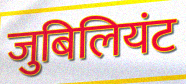
जुबिलियंट